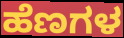
ಹೆಣಗಳ